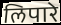
लिपारे